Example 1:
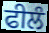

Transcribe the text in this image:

ਫੀਲੰ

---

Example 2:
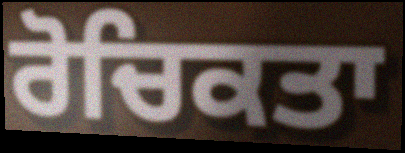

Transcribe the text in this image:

ਰੋਚਿਕਤਾ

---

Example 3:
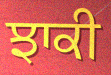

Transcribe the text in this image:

ਝਾਕੀ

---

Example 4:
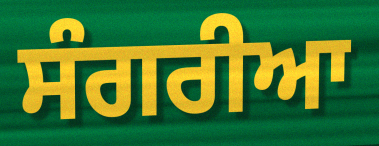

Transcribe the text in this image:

ਸੰਗਰੀਆ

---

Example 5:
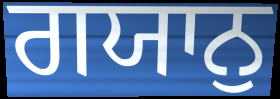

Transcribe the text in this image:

ਗਯਾਨੁ